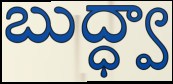
బుద్ధ్వా